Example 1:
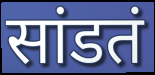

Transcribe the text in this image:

सांडतं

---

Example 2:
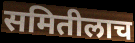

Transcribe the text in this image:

समितीलाच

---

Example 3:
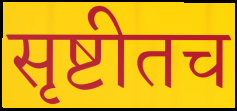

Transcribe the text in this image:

सृष्टीतच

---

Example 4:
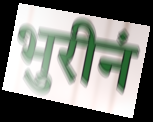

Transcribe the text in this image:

भुरीनं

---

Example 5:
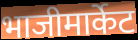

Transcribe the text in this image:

भाजीमार्केट